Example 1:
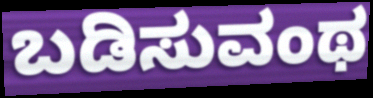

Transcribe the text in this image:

ಬಡಿಸುವಂಥ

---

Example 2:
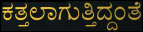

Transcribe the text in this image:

ಕತ್ತಲಾಗುತ್ತಿದ್ದಂತೆ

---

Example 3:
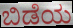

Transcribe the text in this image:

ಬಿಡೆಯ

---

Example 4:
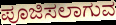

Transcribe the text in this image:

ಪೂಜಿಸಲಾಗುವ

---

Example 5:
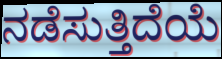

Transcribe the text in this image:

ನಡೆಸುತ್ತಿದೆಯೆ